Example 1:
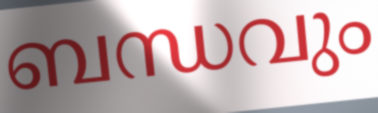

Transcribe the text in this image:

ബന്ധവും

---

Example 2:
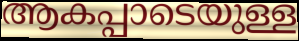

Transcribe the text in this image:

ആകപ്പാടെയുള്ള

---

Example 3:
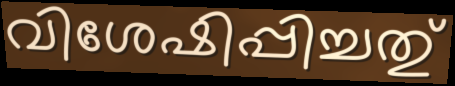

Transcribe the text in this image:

വിശേഷിപ്പിച്ചതു്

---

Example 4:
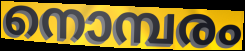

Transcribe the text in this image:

നൊമ്പരം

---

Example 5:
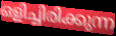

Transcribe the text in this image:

ഒളിച്ചിരിക്കുന്ന